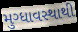
મુગ્ધાવસ્થાથી